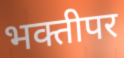
भक्तीपर